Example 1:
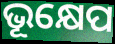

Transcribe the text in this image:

ଭୂକ୍ଷେପ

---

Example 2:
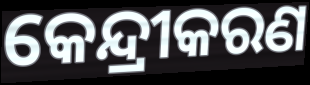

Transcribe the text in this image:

କେନ୍ଦ୍ରୀକରଣ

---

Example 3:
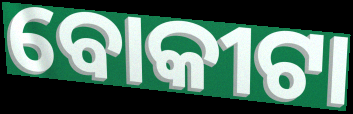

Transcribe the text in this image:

ବୋକୀଟା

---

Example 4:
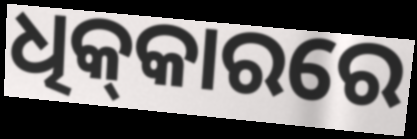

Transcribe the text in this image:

ଧିକ୍‌କାରରେ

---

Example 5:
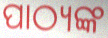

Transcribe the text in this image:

ପାଠ୍ୟଙ୍କ